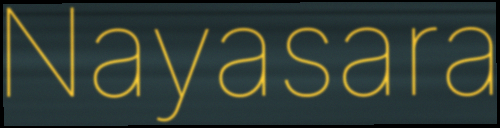
Nayasara